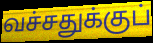
வச்சதுக்குப்